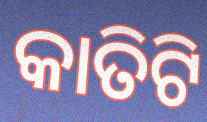
କାତିଟି